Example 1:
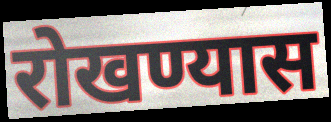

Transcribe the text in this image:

रोखण्यास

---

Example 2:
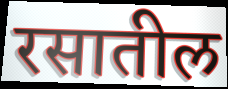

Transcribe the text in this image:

रसातील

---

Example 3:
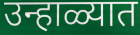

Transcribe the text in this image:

उन्हाळ्यात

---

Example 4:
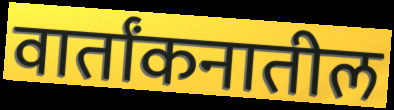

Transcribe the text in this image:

वार्तांकनातील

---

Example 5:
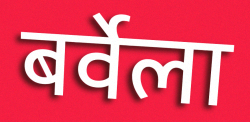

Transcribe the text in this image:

बर्वेला